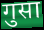
गुसा